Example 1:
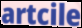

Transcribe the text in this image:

artcile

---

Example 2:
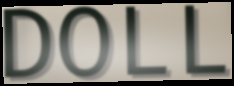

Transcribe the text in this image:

DOLL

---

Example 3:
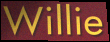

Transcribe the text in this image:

Willie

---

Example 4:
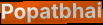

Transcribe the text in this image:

Popatbhai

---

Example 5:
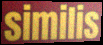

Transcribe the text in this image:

similis